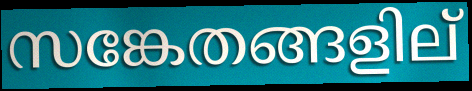
സങ്കേതങ്ങളില്